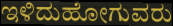
ಇಳಿದುಹೋಗುವರು